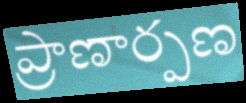
ప్రాణార్పణ